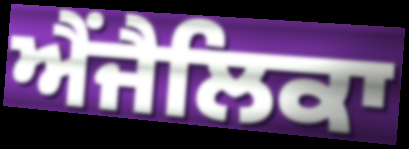
ਐਂਜੈਲਿਕਾ